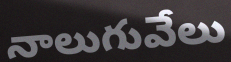
నాలుగువేలు